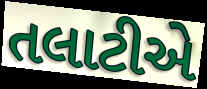
તલાટીએ